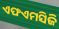
ଏଫଏମସିଜି